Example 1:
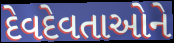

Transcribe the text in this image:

દેવદેવતાઓને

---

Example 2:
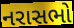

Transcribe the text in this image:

નરાસભો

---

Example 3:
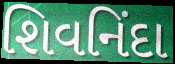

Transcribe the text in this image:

શિવનિંદા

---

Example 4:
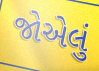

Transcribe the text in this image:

જોએલું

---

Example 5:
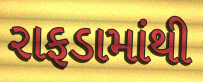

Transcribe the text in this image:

રાફડામાંથી